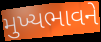
મુખ્યભાવને